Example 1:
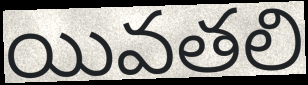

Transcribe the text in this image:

యివతలి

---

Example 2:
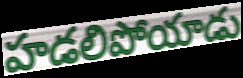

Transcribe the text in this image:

హడలిపోయాడు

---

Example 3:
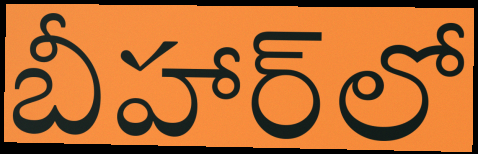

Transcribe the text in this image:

బీహార్‌లో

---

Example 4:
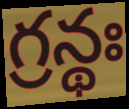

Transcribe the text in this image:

గ్రన్థః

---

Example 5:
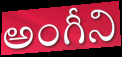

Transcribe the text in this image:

అంగీని